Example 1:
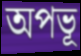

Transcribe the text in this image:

অপভূ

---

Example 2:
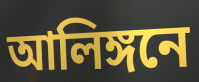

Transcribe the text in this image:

আলিঙ্গনে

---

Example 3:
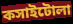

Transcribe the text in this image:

কসাইটোলা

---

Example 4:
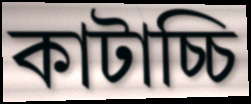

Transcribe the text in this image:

কাটাচ্চি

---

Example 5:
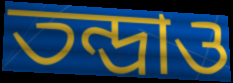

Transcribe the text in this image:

তন্দ্রাও